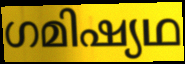
ഗമിഷ്യഥ